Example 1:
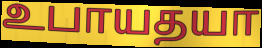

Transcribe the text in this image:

உபாயதயா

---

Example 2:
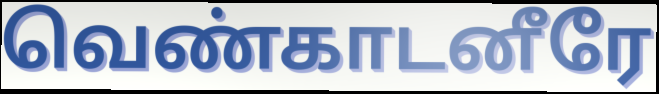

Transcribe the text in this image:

வெண்காடனீரே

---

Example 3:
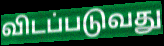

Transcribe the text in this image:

விடப்படுவது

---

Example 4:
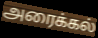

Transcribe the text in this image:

அரைக்கல்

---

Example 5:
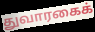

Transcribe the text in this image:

துவாரகைக்